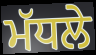
ਮੱਧਲੇ